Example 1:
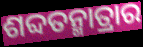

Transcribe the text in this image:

ଶବ୍ଦତନ୍ମାତ୍ରାର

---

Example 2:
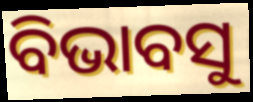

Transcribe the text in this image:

ବିଭାବସୁ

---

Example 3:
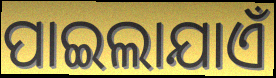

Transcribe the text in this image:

ପାଇଲାଯାଏଁ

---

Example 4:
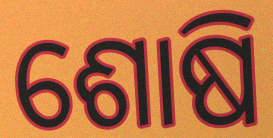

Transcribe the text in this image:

ଶୋଷି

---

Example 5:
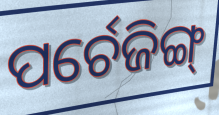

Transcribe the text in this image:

ପର୍ଚେଜିଙ୍ଗ୍